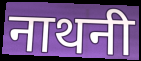
नाथनी